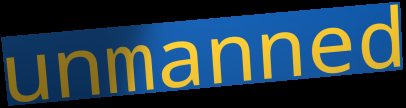
unmanned